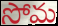
సోమ